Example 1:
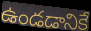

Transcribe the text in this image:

ఉండడానికే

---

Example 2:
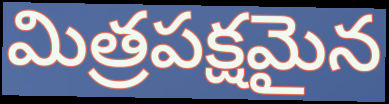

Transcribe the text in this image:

మిత్రపక్షమైన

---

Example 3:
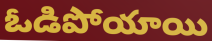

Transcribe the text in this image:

ఓడిపోయాయి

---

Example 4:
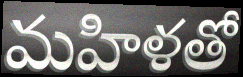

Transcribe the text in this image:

మహిళతో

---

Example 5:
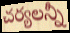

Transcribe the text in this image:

చర్యలన్నీ